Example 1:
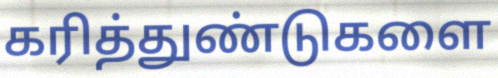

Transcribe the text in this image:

கரித்துண்டுகளை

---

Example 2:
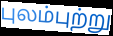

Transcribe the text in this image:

புலம்புற்று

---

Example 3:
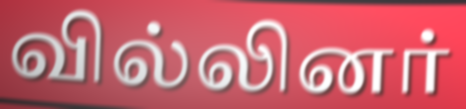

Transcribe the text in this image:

வில்லினர்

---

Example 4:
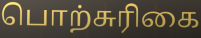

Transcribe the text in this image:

பொற்சுரிகை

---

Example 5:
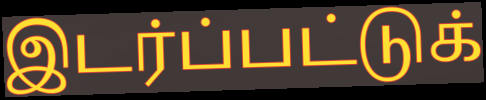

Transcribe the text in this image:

இடர்ப்பட்டுக்